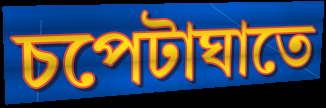
চপেটাঘাতে